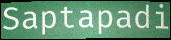
Saptapadi